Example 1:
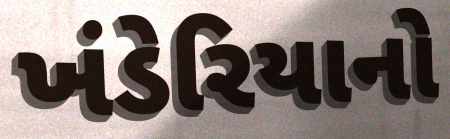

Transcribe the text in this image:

ખંડેરિયાનો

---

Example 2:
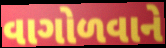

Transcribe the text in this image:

વાગોળવાને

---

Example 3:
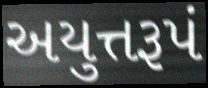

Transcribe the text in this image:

અયુત્તરૂપં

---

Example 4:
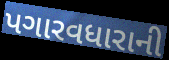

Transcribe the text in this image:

પગારવધારાની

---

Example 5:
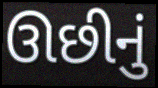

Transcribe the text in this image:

ઊછીનું